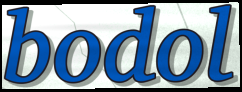
bodol